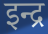
इन्द्र